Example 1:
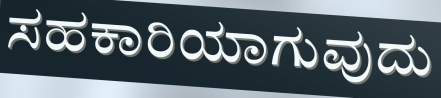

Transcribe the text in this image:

ಸಹಕಾರಿಯಾಗುವುದು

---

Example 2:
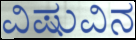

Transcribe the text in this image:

ವಿಷುವಿನ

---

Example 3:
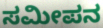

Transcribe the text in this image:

ಸಮೀಪನ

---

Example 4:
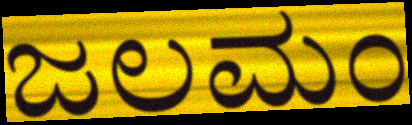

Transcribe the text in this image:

ಜಲಮಂ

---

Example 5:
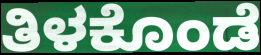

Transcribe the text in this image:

ತಿಳಕೊಂಡೆ